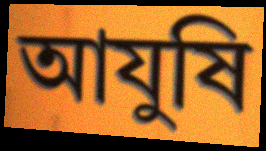
আযুষি